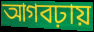
আগবঢ়ায়